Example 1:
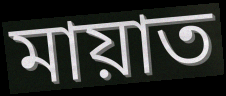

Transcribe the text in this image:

মায়াত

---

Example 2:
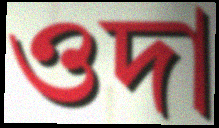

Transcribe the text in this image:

ওদা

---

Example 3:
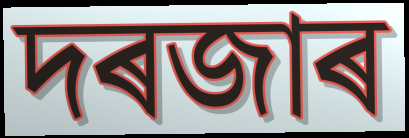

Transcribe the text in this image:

দৰজাৰ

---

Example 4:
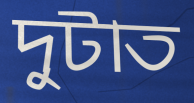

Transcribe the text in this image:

দুটাত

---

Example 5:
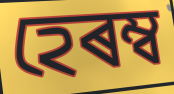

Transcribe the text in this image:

হেৰম্ব